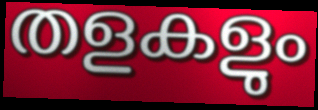
തളകളും